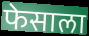
फेसाला